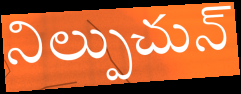
నిల్పుచున్